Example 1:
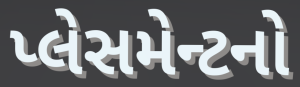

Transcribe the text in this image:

પ્લેસમેન્ટનો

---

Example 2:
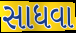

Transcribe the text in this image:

સાધવા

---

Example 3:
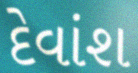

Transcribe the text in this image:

દેવાંશ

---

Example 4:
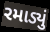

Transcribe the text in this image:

રમાડ્યું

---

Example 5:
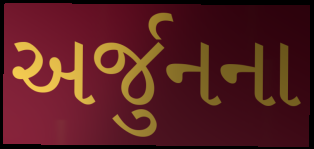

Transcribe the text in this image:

અર્જુનના